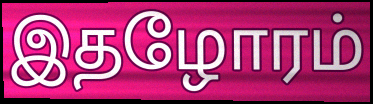
இதழோரம்